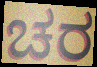
ಚರ